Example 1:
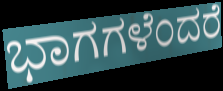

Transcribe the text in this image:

ಭಾಗಗಳೆಂದರೆ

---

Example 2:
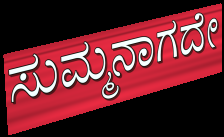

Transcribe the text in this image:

ಸುಮ್ಮನಾಗದೇ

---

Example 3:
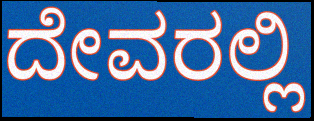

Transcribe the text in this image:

ದೇವರಲ್ಲಿ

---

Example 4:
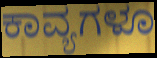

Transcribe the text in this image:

ಕಾವ್ಯಗಳೂ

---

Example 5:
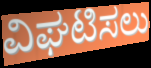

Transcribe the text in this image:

ವಿಘಟಿಸಲು